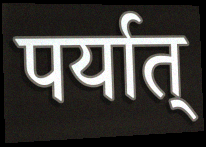
पर्यात्